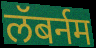
लॅबर्नम